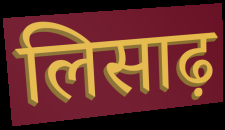
लिसाढ़